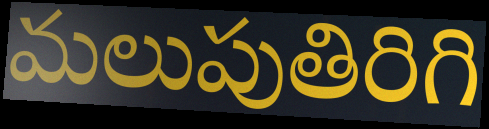
మలుపుతిరిగి